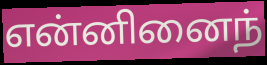
என்னினைந்